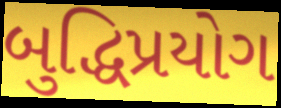
બુદ્ધિપ્રયોગ